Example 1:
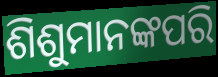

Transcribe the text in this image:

ଶିଶୁମାନଙ୍କପରି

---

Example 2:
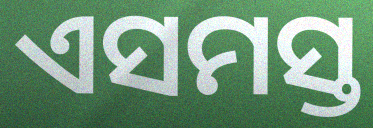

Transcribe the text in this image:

ଏସମସ୍ତ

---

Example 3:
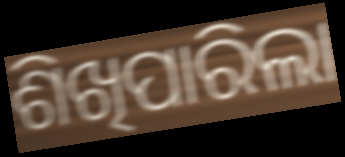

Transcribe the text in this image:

ଶିଖିପାରିଲା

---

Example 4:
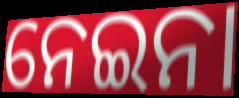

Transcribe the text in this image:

ନେଇନା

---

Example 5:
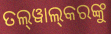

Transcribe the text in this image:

ତଲ୍‌ୱାଲ୍‌କରଙ୍କୁ